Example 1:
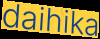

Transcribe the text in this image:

daihika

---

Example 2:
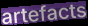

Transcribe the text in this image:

artefacts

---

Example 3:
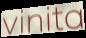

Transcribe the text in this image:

vinita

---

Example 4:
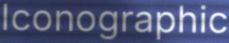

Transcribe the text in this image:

Iconographic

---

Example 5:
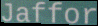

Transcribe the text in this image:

Jaffor